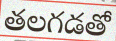
తలగడతో